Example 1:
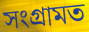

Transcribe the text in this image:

সংগ্ৰামত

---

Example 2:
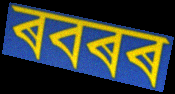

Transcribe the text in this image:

ৰবৰৰ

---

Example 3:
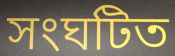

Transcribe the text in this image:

সংঘটিত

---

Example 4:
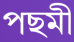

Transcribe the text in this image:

পছমী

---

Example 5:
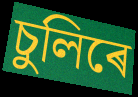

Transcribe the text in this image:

চুলিৰে